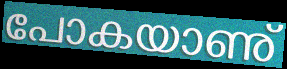
പോകയാണു്